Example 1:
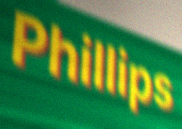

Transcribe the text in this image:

Phillips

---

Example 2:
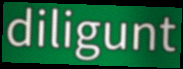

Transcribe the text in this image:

diligunt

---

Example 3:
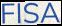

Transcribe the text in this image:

FISA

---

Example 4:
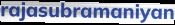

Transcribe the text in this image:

rajasubramaniyan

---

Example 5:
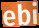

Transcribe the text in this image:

ebi